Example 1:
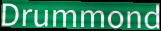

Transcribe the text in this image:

Drummond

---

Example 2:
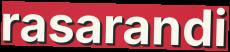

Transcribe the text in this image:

rasarandi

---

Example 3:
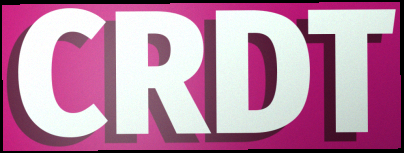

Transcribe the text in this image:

CRDT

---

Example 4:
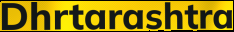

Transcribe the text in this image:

Dhrtarashtra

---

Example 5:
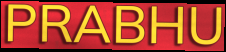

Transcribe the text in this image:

PRABHU